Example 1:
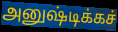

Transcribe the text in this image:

அனுஷ்டிக்கச்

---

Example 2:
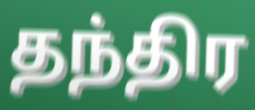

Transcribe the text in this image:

தந்திர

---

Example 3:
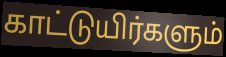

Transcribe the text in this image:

காட்டுயிர்களும்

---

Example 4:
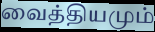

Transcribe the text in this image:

வைத்தியமும்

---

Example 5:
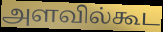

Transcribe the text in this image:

அளவில்கூட